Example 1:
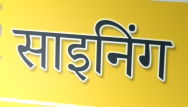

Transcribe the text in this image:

साइनिंग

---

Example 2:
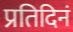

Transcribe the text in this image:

प्रतिदिनं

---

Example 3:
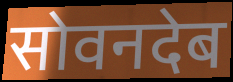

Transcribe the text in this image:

सोवनदेब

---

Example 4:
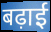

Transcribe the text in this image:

बढ़ाई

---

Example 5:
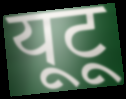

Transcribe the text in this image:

यूटू